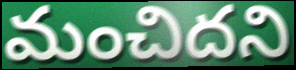
మంచిదని